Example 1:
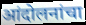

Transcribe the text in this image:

आंदोलनांचा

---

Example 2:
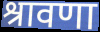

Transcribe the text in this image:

श्रावणा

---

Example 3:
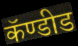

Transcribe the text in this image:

कॅण्डीड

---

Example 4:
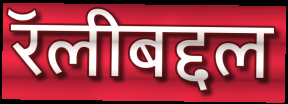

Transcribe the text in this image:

रॅलीबद्दल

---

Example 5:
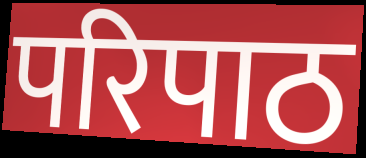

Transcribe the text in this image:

परिपाठ